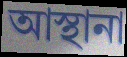
আস্থানা